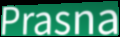
Prasna